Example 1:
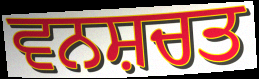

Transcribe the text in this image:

ਵਨਸ਼ਚਤ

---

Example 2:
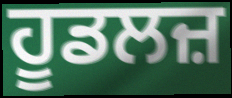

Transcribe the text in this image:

ਹੂਡਲਜ਼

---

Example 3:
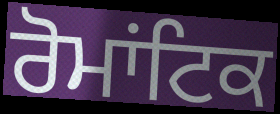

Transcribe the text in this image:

ਰੋਮਾਂਟਿਕ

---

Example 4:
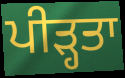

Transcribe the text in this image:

ਪੀੜ੍ਹਤਾ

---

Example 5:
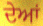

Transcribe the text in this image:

ਦੇਆਂ